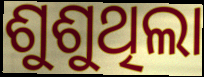
ଶୁଶୁଥିଲା